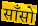
साँसो